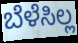
ಬೆಳೆಸಿಲ್ಲ